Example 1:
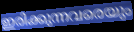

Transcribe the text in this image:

ഇരിക്കുന്നവരെയും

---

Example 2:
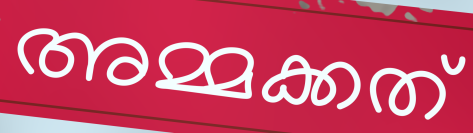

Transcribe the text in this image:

അമ്മക്കത്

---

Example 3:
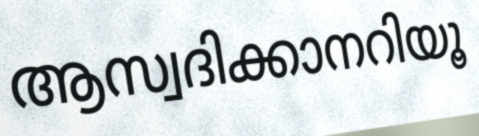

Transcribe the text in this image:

ആസ്വദിക്കാനറിയൂ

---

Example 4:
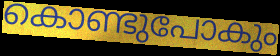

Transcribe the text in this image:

കൊണ്ടുപോകും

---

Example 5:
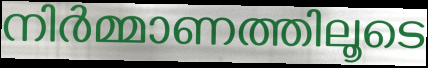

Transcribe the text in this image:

നിർമ്മാണത്തിലൂടെ